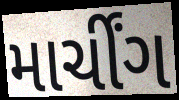
માર્ચીંગ